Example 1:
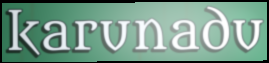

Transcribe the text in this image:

karunadu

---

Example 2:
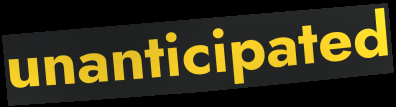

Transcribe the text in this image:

unanticipated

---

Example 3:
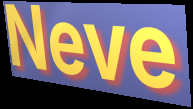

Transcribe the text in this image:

Neve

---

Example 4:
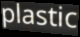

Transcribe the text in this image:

plastic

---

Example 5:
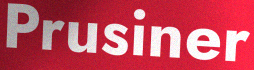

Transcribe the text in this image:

Prusiner